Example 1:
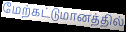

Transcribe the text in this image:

மேற்கட்டுமானத்தில்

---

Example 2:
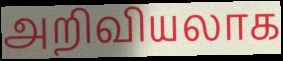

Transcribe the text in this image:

அறிவியலாக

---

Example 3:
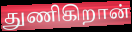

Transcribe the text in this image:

துணிகிறான்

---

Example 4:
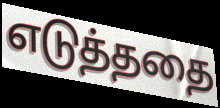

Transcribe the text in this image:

எடுத்ததை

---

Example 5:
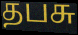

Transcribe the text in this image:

தபசு